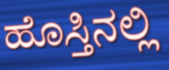
ಹೊಸ್ತಿನಲ್ಲಿ